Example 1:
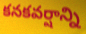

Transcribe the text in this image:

కనకవర్షాన్ని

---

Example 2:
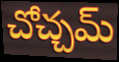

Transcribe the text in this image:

చోచ్చమ్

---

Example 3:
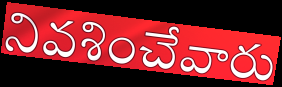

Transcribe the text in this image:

నివశించేవారు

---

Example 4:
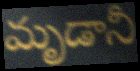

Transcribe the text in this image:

మృడానీ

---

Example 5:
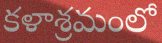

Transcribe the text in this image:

కళాశ్రమంలో